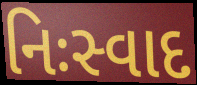
નિઃસ્વાદ